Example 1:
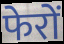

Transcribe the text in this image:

फेरों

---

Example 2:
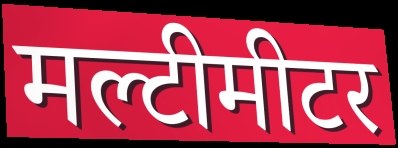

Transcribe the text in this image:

मल्टीमीटर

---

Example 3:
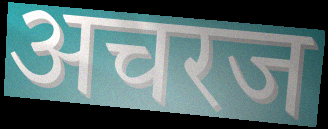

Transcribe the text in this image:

अचरज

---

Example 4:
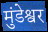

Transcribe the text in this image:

मुंडेश्वर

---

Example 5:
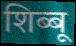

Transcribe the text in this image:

शिब्बू